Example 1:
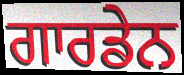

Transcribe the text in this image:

ਗਾਰਡੇਨ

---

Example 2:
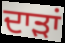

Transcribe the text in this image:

ਦਾੜਾਂ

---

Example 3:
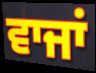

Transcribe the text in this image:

ਵਾਜਾਂ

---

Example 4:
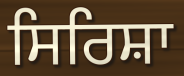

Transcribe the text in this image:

ਸਿਰਿਸ਼ਾ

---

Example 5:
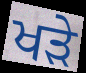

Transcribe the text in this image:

ਖਡ਼ੇ